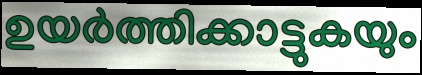
ഉയർത്തിക്കാട്ടുകയും